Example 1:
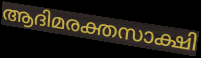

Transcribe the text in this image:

ആദിമരക്തസാക്ഷി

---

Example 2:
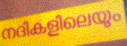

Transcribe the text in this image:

നദികളിലെയും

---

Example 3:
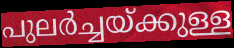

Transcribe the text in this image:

പുലർച്ചയ്ക്കുള്ള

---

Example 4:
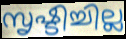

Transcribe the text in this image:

സൃഷ്ടിച്ചില്ല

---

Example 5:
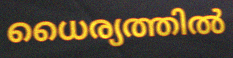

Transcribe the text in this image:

ധൈര്യത്തിൽ